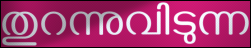
തുറന്നുവിടുന്ന